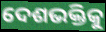
ଦେଶଭକ୍ତିକୁ